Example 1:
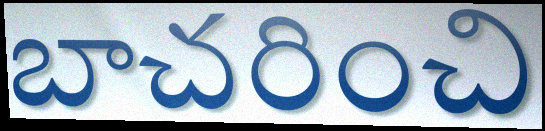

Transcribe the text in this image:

బాచరించి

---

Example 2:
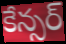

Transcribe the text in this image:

కేన్సర్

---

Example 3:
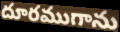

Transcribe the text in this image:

దూరముగాను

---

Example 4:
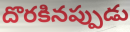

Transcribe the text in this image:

దొరకినప్పుడు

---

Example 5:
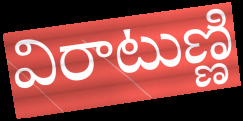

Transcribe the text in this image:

విరాటుణ్ణి